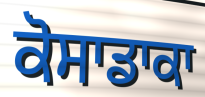
ਕੋਸਾਡਾਕਾ